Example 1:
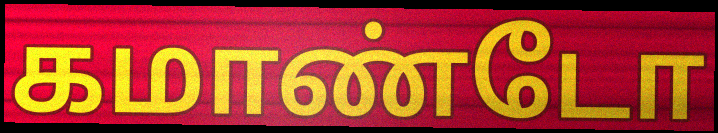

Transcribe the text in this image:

கமாண்டோ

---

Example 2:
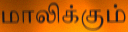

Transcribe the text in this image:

மாலிக்கும்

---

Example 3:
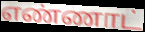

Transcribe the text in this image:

எண்ணாட்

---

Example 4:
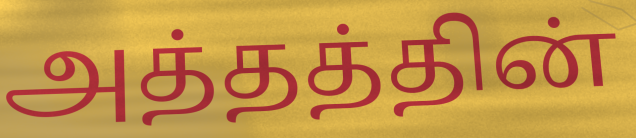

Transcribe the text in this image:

அத்தத்தின்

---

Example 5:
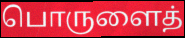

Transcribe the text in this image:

பொருளைத்